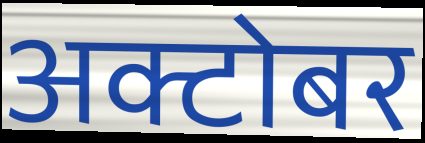
अक्टोबर